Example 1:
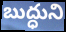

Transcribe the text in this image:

బుద్ధుని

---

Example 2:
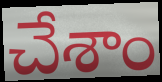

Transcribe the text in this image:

చేశాం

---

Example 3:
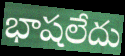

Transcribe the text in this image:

భాషలేదు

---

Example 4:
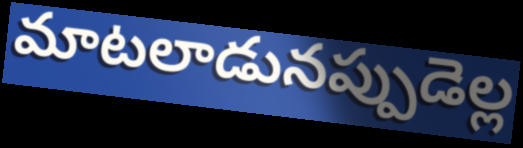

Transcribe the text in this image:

మాటలాడునప్పుడెల్ల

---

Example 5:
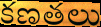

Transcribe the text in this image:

కణతలు